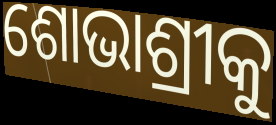
ଶୋଭାଶ୍ରୀକୁ